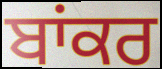
ਬਾਂਕਰ